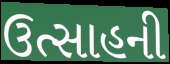
ઉત્સાહની